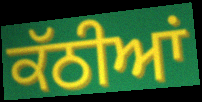
ਕੱਠੀਆਂ